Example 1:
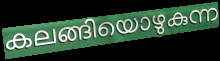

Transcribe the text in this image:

കലങ്ങിയൊഴുകുന്ന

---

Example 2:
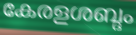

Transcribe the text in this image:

കേരളശബ്ദം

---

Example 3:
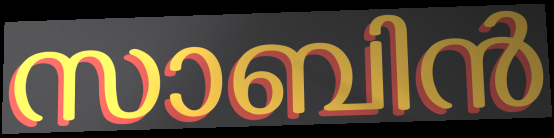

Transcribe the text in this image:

സാബിൻ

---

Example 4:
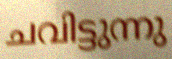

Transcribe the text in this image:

ചവിട്ടുന്നു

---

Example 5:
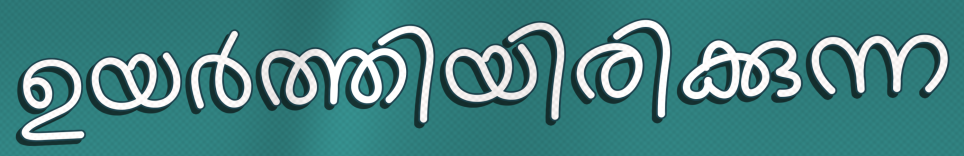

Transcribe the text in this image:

ഉയർത്തിയിരിക്കുന്ന